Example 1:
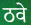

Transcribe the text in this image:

ठवे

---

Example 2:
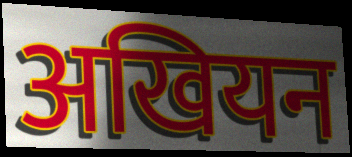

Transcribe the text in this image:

अखियन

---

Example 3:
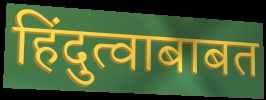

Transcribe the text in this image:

हिंदुत्वाबाबत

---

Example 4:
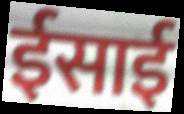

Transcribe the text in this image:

ईसाई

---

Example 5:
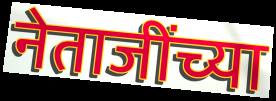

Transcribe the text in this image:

नेताजींच्या